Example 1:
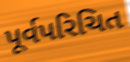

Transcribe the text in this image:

પૂર્વપરિચિત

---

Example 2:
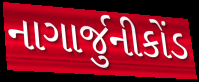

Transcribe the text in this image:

નાગાર્જુનીકોંડ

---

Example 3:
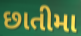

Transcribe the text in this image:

છાતીમા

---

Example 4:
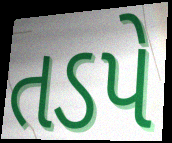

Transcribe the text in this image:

તડપે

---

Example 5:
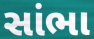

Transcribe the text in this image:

સાંભા